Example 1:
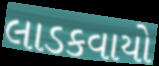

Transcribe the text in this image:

લાડકવાયો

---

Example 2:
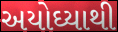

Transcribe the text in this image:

અયોઘ્યાથી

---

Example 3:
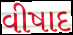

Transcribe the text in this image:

વીષાદ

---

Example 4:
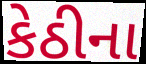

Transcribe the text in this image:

કેઠીના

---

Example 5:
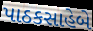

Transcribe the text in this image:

પાઠકસાહેબે